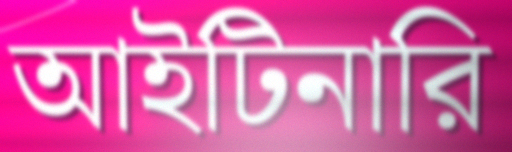
আইটিনারি